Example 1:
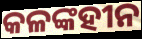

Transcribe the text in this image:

କଳଙ୍କହୀନ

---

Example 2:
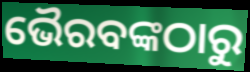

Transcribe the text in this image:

ଭୈରବଙ୍କଠାରୁ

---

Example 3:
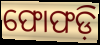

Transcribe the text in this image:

ଫୋଫଡ଼ି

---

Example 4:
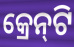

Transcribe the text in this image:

କ୍ରେନ୍‍ଟି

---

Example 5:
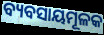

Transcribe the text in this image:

ବ୍ୟବସାୟମୂଳକ